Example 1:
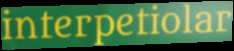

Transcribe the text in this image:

interpetiolar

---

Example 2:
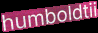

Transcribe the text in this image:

humboldtii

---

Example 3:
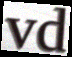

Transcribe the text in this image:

vd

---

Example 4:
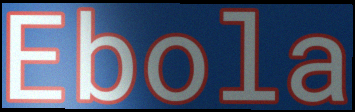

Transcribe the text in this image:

Ebola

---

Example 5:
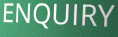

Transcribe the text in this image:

ENQUIRY